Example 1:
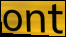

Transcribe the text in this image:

ont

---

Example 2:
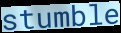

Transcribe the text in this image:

stumble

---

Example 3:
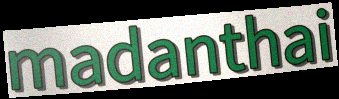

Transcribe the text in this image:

madanthai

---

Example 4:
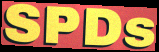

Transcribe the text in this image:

SPDs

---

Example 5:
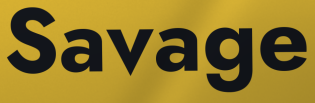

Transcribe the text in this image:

Savage